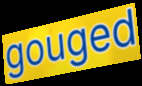
gouged